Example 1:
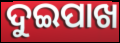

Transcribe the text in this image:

ଦୁଇପାଖ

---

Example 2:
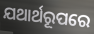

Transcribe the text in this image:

ଯଥାର୍ଥରୂପରେ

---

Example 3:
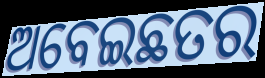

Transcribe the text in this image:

ଅବେଇଛତର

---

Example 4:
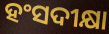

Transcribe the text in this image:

ହଂସଦୀକ୍ଷା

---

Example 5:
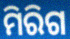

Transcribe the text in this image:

ମିରିଗ